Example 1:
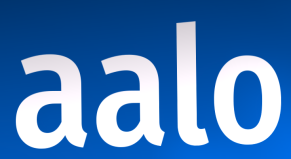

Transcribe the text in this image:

aalo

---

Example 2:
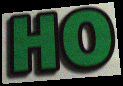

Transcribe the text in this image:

HO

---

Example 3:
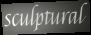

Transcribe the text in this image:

sculptural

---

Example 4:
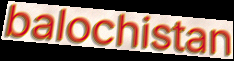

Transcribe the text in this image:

balochistan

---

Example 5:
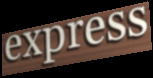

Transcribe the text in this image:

express